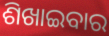
ଶିଖାଇବାର